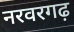
नरवरगढ़